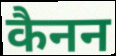
कैनन